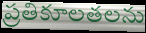
ప్రతికూలతలను